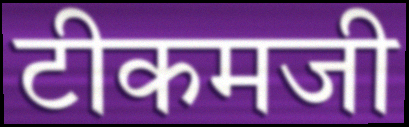
टीकमजी